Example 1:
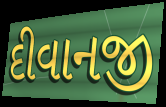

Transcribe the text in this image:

દીવાનજી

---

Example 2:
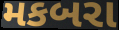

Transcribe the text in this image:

મકબરા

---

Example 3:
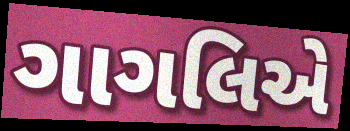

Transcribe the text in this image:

ગાગલિએ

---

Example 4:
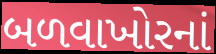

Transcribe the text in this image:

બળવાખોરનાં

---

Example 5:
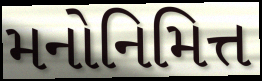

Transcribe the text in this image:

મનોનિમિત્ત